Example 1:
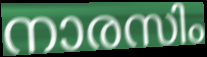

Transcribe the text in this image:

നാരസിം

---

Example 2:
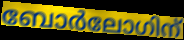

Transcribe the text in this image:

ബോർലോഗിന്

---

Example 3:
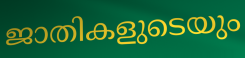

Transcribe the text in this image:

ജാതികളുടെയും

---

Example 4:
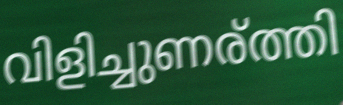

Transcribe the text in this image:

വിളിച്ചുണര്ത്തി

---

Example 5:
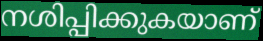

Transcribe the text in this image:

നശിപ്പിക്കുകയാണ്